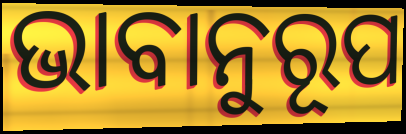
ଭାବାନୁରୂପ